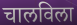
चालविला